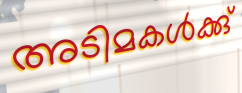
അടിമകൾക്കു്